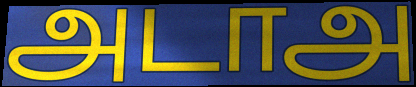
அடாஅ